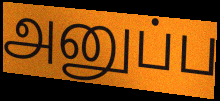
அனுப்ப